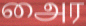
அைர